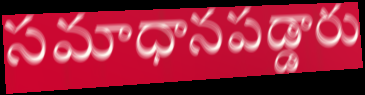
సమాధానపడ్డారు